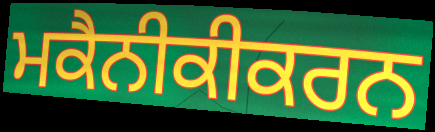
ਮਕੈਨੀਕੀਕਰਨ